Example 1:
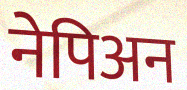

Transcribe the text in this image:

नेपिअन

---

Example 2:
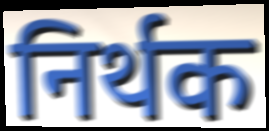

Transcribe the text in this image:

निर्थक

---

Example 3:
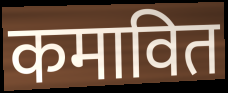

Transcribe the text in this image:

कमावित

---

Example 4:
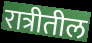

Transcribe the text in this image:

रात्रीतील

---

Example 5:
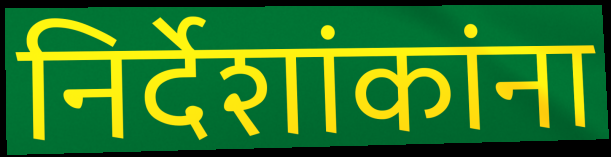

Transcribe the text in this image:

निर्देशांकांना